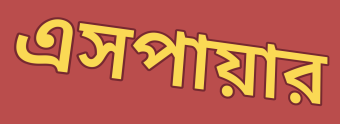
এসপায়ার